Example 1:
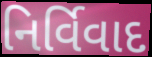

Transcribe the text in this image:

નિર્વિવાદ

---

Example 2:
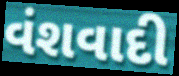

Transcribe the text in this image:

વંશવાદી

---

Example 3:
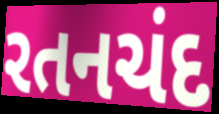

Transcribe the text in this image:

રતનચંદ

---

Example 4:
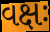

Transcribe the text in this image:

વક્ષઃ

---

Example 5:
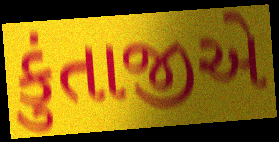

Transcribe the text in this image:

કુંતાજીએ